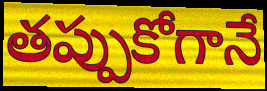
తప్పుకోగానే